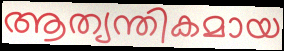
ആത്യന്തികമായ